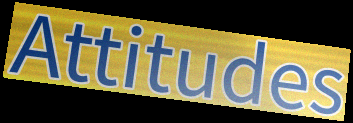
Attitudes